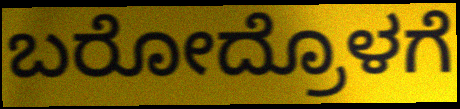
ಬರೋದ್ರೊಳಗೆ